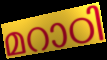
മറാഠി